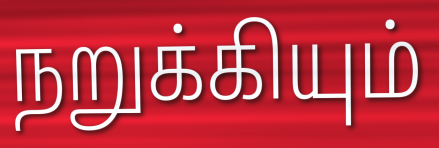
நறுக்கியும்